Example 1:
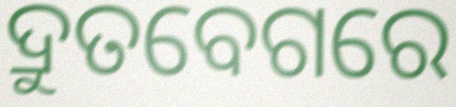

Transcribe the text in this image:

ଦ୍ରୁତବେଗରେ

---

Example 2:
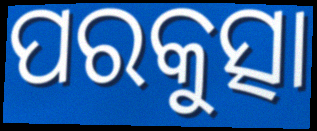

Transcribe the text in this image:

ପରକୁତ୍ସା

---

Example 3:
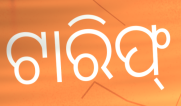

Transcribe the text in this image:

ଟାରିଫ୍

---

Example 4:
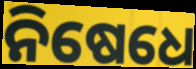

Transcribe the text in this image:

ନିଷେଧେ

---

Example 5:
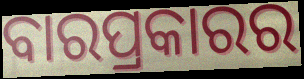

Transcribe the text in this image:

ବାରପ୍ରକାରର